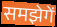
समझेगें